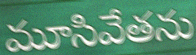
మూసివేతను